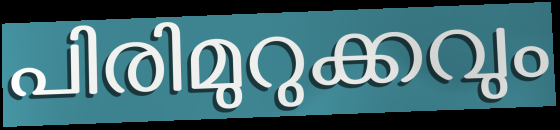
പിരിമുറുക്കവും